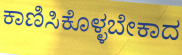
ಕಾಣಿಸಿಕೊಳ್ಳಬೇಕಾದ